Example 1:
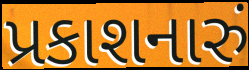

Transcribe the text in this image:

પ્રકાશનારું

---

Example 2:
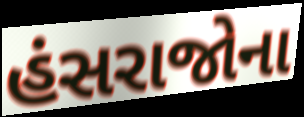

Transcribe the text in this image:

હંસરાજોના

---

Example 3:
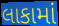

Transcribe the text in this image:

લાકામાં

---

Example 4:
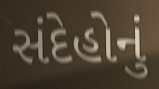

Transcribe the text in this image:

સંદેહોનું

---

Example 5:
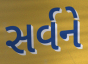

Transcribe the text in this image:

સર્વને